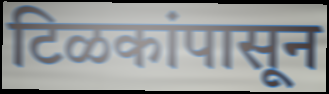
टिळकांपासून